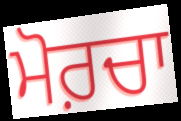
ਮੋਰ਼ਚਾ